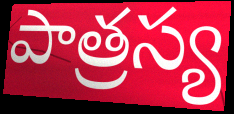
పాత్రస్య